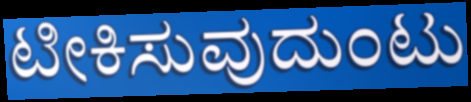
ಟೀಕಿಸುವುದುಂಟು